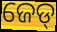
ଜେଡ୍